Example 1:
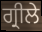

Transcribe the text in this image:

ਗ੍ਰੀਲੇ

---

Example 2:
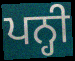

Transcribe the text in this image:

ਪਨ੍ਹੀ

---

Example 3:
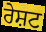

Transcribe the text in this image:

ਰੇਸ਼ਟ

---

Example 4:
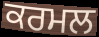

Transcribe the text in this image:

ਕਰਮਲ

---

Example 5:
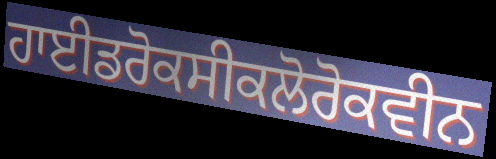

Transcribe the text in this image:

ਹਾਈਡਰੋਕਸੀਕਲੋਰੋਕਵੀਨ